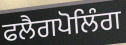
ਫਲੈਗਪੋਲਿੰਗ